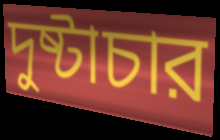
দুষ্টাচার